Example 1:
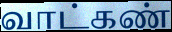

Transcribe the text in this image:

வாட்கண்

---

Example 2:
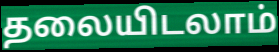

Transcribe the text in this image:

தலையிடலாம்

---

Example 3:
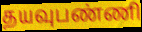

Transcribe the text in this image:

தயவுபண்ணி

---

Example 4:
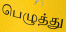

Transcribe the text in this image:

பெழுத்து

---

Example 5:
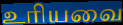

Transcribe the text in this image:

உரியவை